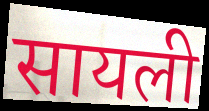
सायली